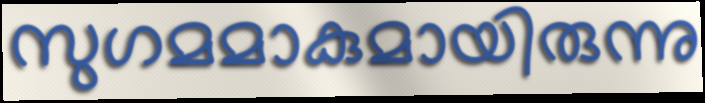
സുഗമമാകുമായിരുന്നു